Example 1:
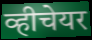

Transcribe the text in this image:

व्हीचेयर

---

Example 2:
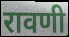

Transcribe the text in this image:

रावणी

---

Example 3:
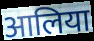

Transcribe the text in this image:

आलिया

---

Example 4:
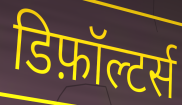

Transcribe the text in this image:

डिफ़ॉल्टर्स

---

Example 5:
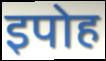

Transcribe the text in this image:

इपोह